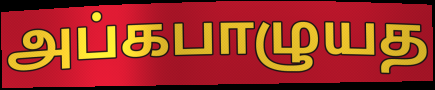
அப்கபாழுயத